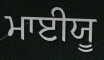
ਮਾਈਯੂ